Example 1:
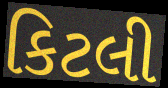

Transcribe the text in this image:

કિટલી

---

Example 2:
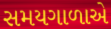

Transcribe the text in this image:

સમયગાળાએ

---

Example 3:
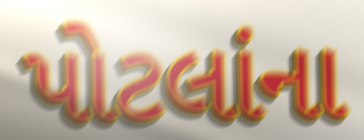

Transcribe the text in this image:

પોટલાંના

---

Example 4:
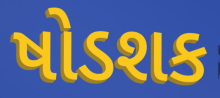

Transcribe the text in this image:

ષોડશક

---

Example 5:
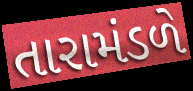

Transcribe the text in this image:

તારામંડળે